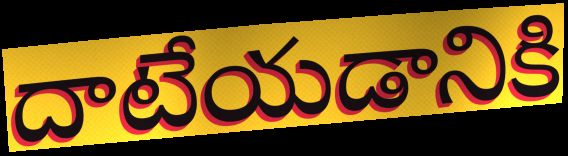
దాటేయడానికి